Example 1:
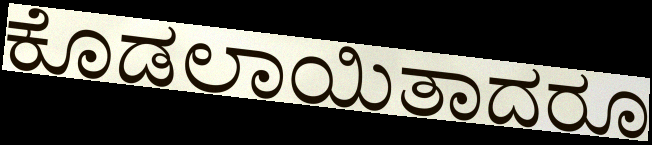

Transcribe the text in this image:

ಕೊಡಲಾಯಿತಾದರೂ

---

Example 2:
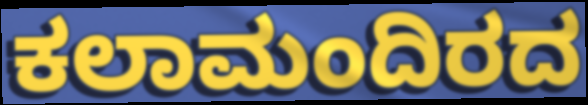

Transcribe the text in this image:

ಕಲಾಮಂದಿರದ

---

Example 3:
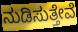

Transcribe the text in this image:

ನುಡಿಸುತ್ತೇವೆ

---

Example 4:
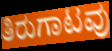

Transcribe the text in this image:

ತಿರುಗಾಟವು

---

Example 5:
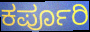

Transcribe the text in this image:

ಕರ್ಪೂರಿ